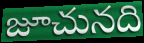
జూచునది